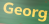
Georg